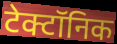
टेक्टॉनिक